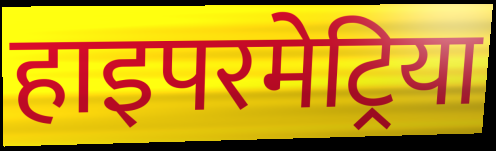
हाइपरमेट्रिया